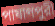
পাষাণপুরী